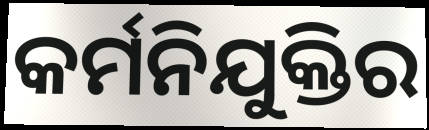
କର୍ମନିଯୁକ୍ତିର